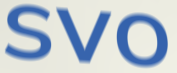
svo